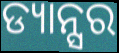
ଡ୍ୟାନ୍ସର